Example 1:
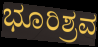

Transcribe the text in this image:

ಭೂರಿಶ್ರವ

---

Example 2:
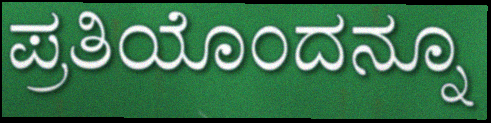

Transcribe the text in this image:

ಪ್ರತಿಯೊಂದನ್ನೂ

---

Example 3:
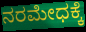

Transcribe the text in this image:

ನರಮೇಧಕ್ಕೆ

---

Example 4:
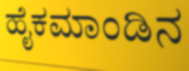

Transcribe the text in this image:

ಹೈಕಮಾಂಡಿನ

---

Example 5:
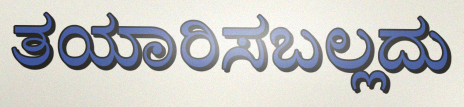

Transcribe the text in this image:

ತಯಾರಿಸಬಲ್ಲದು